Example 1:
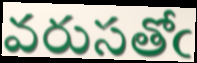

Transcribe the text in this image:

వరుసతోఁ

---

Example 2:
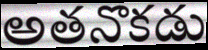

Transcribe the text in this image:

అతనొకడు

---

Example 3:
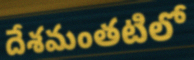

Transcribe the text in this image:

దేశమంతటిలో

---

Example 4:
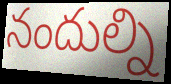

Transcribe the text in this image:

నందుల్ని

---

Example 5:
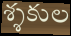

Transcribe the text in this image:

శ్శకుల